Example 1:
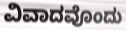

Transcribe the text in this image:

ವಿವಾದವೊಂದು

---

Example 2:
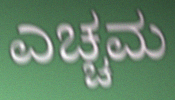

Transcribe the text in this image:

ಎಚ್ಚಮ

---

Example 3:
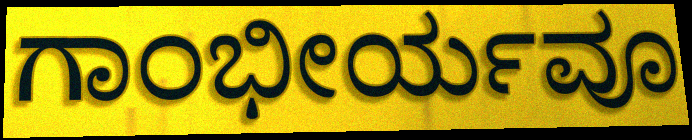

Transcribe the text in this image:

ಗಾಂಭೀರ್ಯವೂ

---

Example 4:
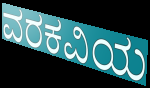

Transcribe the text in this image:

ವರಕವಿಯ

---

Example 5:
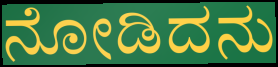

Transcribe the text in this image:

ನೋಡಿದನು